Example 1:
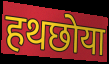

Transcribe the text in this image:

हथछोया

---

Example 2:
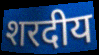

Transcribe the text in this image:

शरदीय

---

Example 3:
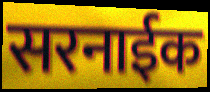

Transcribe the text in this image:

सरनाईक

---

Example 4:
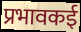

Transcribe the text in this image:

प्रभावकई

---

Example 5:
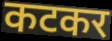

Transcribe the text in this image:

कटकर